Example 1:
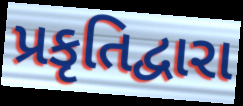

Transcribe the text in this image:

પ્રકૃતિદ્વારા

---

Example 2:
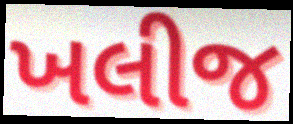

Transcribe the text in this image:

ખલીજ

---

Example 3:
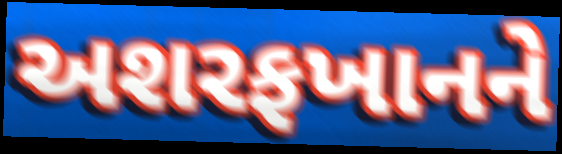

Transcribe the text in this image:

અશરફખાનને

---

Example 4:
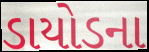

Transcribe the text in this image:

ડાયોડના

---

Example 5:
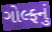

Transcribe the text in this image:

ગોલ્ફનું